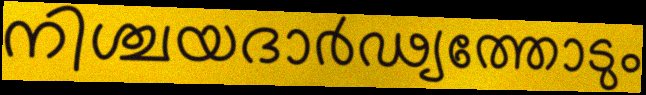
നിശ്ചയദാർഢ്യത്തോടും